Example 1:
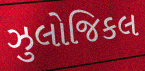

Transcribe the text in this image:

ઝુલોજિકલ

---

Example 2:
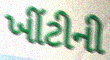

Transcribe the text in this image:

ખીંટીની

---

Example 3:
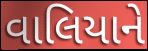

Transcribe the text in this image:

વાલિયાને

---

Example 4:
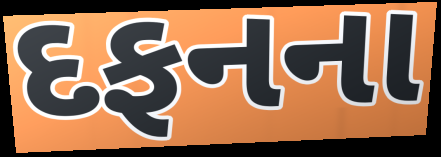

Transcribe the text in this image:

દફનના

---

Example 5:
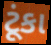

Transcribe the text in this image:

ટૂંકા